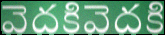
వెదకివెదకి